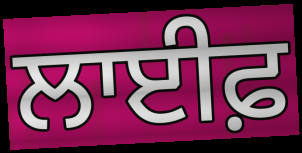
ਲਾਈਫ਼